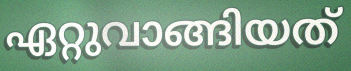
ഏറ്റുവാങ്ങിയത്